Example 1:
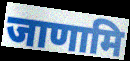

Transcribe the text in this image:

जाणामि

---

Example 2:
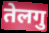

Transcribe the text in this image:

तेलगु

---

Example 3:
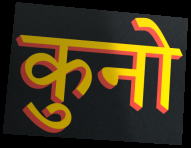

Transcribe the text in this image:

कुनो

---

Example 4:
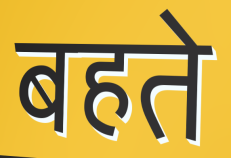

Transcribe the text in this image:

बहते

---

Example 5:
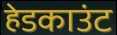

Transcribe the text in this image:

हेडकाउंट